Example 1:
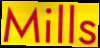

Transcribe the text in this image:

Mills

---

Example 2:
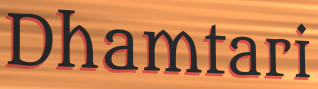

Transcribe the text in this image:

Dhamtari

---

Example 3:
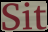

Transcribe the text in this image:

Sit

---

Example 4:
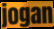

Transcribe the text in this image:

jogan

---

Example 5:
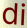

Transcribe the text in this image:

di